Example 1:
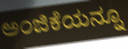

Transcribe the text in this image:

ಅಂಜಿಕೆಯನ್ನೂ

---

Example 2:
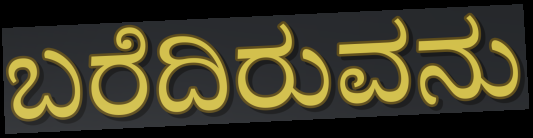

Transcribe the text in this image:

ಬರೆದಿರುವನು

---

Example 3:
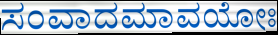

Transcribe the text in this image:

ಸಂವಾದಮಾವಯೋಃ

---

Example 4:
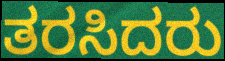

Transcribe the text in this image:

ತರಸಿದರು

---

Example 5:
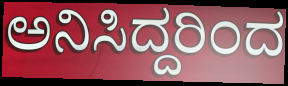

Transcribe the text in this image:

ಅನಿಸಿದ್ದರಿಂದ